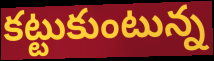
కట్టుకుంటున్న